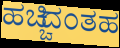
ಹಚ್ಚಿದಂತಹ